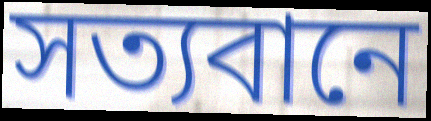
সত্যবানে